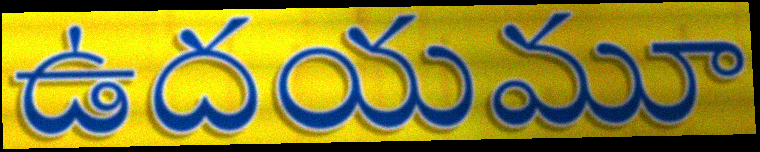
ఉదయమూ